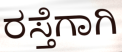
ರಸ್ತೆಗಾಗಿ